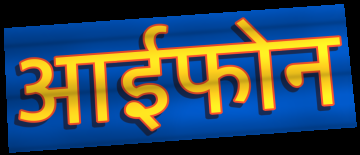
आईफोन